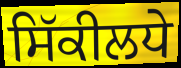
ਸਿੱਕੀਲਧੇ